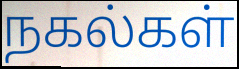
நகல்கள்